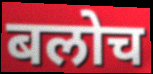
बलोच